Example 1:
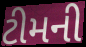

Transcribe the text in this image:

ટીમની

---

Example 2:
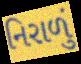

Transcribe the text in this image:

નિરાળું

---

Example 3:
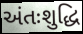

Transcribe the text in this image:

અંતઃશુદ્ધિ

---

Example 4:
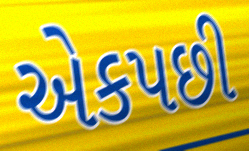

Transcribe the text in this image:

એકપછી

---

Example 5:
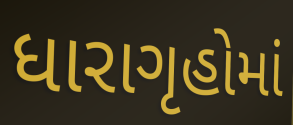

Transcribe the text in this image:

ધારાગૃહોમાં